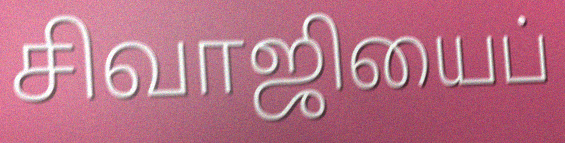
சிவாஜியைப்